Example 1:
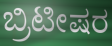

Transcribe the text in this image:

ಬ್ರಿಟೀಷರ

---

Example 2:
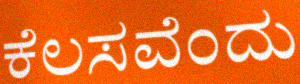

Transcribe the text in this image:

ಕೆಲಸವೆಂದು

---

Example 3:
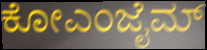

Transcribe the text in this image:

ಕೋಎಂಜೈಮ್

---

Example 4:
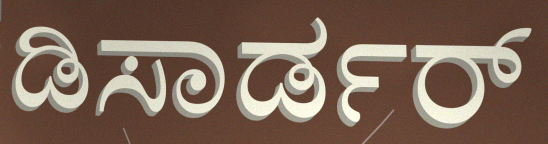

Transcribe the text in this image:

ಡಿಸಾರ್ಡರ್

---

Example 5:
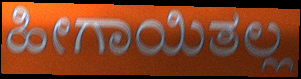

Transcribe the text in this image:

ಹೀಗಾಯಿತಲ್ಲ